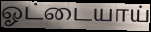
ஓட்டையாய்